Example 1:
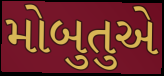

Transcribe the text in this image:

મોબુતુએ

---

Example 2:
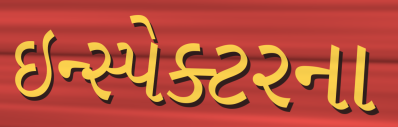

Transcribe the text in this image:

ઇન્સ્પેક્ટરના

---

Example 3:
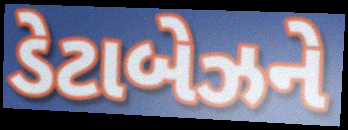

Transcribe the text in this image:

ડેટાબેઝને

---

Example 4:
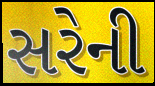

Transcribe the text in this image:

સરેની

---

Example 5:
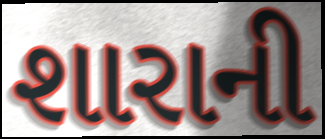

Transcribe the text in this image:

શારાની